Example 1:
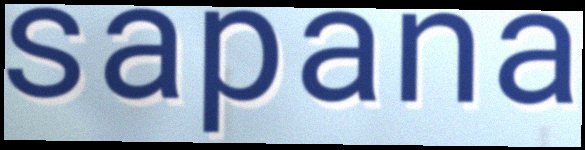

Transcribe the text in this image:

sapana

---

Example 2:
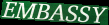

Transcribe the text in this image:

EMBASSY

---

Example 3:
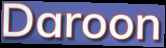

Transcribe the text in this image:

Daroon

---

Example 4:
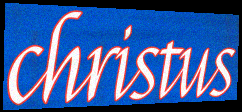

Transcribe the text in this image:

christus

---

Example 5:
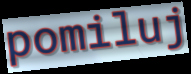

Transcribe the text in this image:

pomiluj